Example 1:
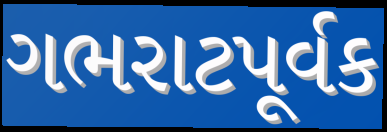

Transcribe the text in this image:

ગભરાટપૂર્વક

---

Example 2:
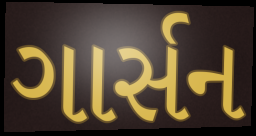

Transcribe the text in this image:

ગાર્સન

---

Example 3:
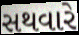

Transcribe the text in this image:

સથવારે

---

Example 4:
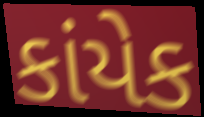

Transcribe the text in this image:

કાંયેક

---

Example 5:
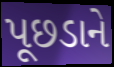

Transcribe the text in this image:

પૂછડાને